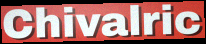
Chivalric